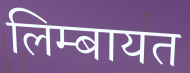
लिम्बायत